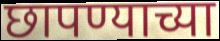
छापण्याच्या